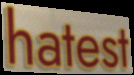
hatest